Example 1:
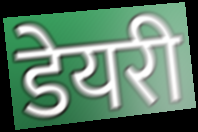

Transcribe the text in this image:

डेयरी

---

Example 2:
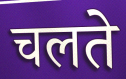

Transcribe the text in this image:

चलते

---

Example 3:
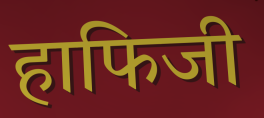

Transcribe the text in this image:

हाफिजी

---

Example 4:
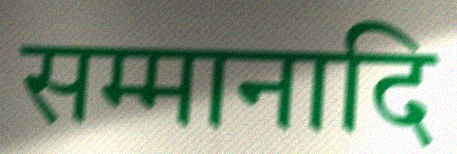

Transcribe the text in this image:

सम्मानादि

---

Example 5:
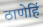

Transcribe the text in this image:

ठाणेहिं